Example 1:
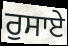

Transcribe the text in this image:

ਰੁਸਾਏ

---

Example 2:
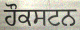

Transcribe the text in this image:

ਹੌਕਸਟਨ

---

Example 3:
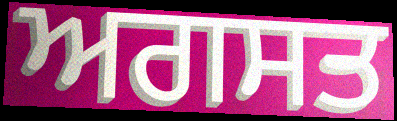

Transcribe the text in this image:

ਅਗਸਤ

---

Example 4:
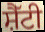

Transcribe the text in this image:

ਸ਼ੈੱਟੀ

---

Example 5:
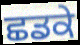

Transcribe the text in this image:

ਛਡਕੇ